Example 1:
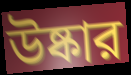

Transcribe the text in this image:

উষ্কার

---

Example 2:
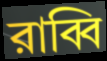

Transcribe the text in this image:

রাব্বি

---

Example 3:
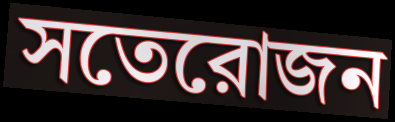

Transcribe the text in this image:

সতেরোজন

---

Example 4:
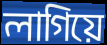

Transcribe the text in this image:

লাগিয়ে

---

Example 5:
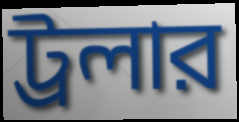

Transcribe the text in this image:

ট্রলার